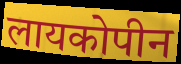
लायकोपीन